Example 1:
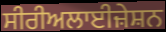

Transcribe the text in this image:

ਸੀਰੀਅਲਾਈਜ਼ੇਸ਼ਨ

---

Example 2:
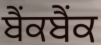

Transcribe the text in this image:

ਬੈਂਕਬੈਂਕ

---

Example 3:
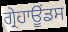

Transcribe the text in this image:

ਗ੍ਰੇਹਾਊਂਡਸ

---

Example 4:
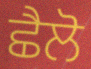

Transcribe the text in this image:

ਛੈਲੋ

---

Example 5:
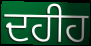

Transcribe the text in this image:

ਦਹੀਹ